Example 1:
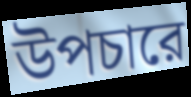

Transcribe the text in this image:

উপচারে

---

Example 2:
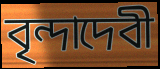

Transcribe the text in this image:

বৃন্দাদেবী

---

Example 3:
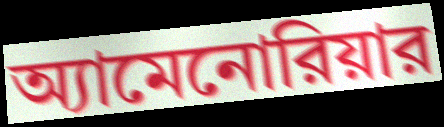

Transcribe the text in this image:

অ্যামেনোরিয়ার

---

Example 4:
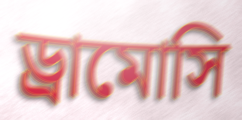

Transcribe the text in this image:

ড্রামোসি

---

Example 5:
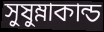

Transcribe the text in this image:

সুষুম্নাকান্ড